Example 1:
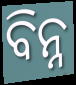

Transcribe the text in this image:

ବିନ୍ନ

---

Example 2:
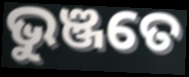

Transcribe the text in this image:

ଭୁଞ୍ଜତେ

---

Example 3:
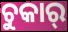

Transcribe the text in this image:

ଚୁକାର୍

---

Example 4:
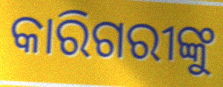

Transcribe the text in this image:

କାରିଗରୀଙ୍କୁ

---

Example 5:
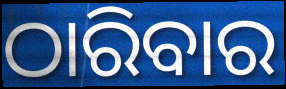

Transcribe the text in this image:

ଠାରିବାର